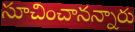
సూచించానన్నారు